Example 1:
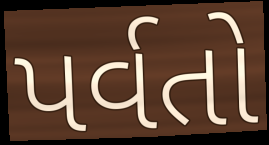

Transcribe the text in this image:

પર્વતો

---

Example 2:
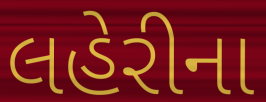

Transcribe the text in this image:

લહેરીના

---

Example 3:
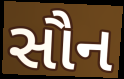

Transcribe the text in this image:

સૌન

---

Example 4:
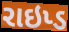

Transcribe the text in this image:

રાઇપ્ડ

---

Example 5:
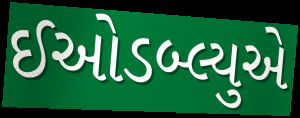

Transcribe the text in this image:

ઈઓડબ્લ્યુએ